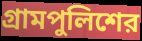
গ্রামপুলিশের